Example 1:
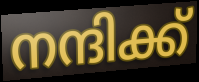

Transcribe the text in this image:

നന്ദിക്ക്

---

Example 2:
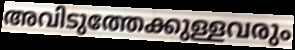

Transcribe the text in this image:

അവിടുത്തേക്കുള്ളവരും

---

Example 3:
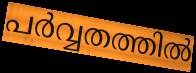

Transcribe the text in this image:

പർവ്വതത്തിൽ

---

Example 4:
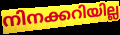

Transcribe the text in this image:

നിനക്കറിയില്ല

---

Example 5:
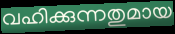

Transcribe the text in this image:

വഹിക്കുന്നതുമായ